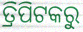
ତ୍ରିପିଟକରୁ